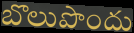
బొలుపొందు